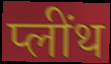
प्लींथ